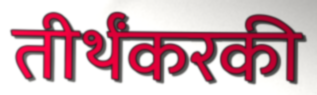
तीर्थंकरकी